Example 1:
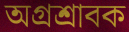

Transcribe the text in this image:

অগ্রশ্রাবক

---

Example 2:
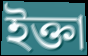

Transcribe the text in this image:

ইক্তা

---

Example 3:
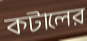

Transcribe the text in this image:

কটালের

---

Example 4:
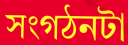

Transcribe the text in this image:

সংগঠনটা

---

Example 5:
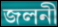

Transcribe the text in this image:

জলনী